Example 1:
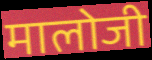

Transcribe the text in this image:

मालोजी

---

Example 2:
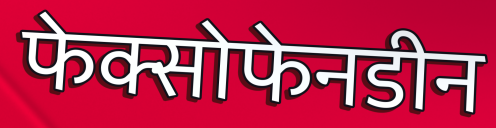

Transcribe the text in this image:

फेक्सोफेनडीन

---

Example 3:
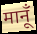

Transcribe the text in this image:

मानूँ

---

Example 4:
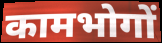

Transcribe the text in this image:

कामभोगों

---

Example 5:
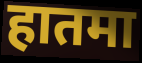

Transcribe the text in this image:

हातमा